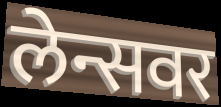
लेन्सवर